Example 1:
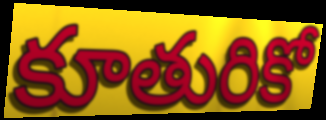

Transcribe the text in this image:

కూతురికో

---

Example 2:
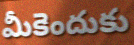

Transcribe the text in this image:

మీకెందుకు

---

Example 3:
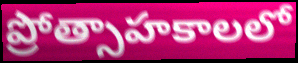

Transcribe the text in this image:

ప్రోత్సాహకాలలో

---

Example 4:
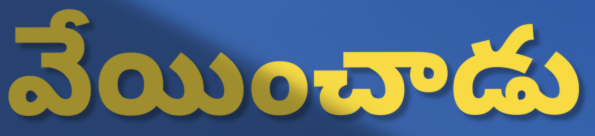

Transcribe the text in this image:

వేయించాడు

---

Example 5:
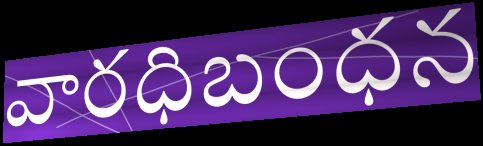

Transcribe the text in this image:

వారధిబంధన